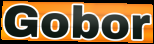
Gobor